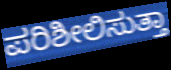
ಪರಿಶೀಲಿಸುತ್ತಾ